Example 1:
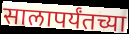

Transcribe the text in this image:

सालापर्यंतच्या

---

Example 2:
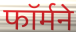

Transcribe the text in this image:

फॉर्मने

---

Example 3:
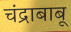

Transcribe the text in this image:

चंद्राबाबू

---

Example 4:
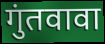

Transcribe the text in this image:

गुंतवावा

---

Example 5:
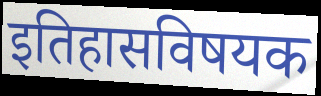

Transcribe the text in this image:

इतिहासविषयक